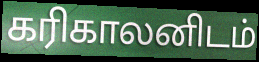
கரிகாலனிடம்